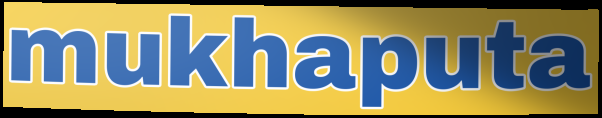
mukhaputa